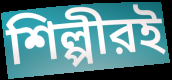
শিল্পীরই